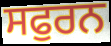
ਸਫੁਰਨ